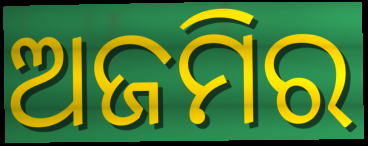
ଅଜମିର